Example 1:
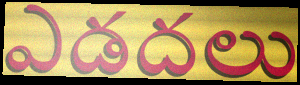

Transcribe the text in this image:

ఎడదలు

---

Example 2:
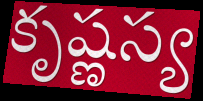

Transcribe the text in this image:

కృష్ణస్య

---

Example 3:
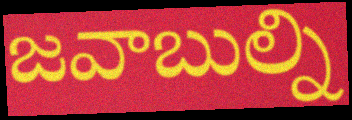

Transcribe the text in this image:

జవాబుల్ని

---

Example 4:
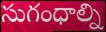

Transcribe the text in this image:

సుగంధాల్ని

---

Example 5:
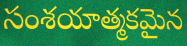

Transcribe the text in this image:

సంశయాత్మకమైన